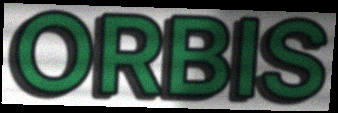
ORBIS